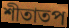
শীতাতপ